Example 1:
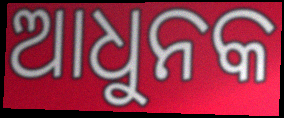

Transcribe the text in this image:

ଆଧୁନକ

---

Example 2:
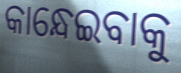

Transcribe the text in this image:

କାନ୍ଧେଇବାକୁ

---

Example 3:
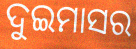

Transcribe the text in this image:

ଦୁଇମାସର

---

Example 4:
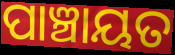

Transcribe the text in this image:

ପାଞ୍ଚାୟତ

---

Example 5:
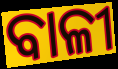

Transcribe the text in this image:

ବାଳୀ